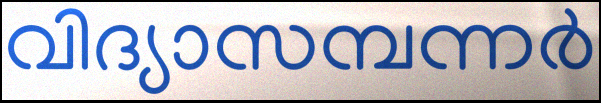
വിദ്യാസമ്പന്നർ